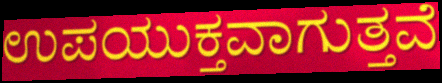
ಉಪಯುಕ್ತವಾಗುತ್ತವೆ